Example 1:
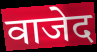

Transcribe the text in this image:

वाजेद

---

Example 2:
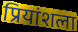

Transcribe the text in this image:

प्रियांशला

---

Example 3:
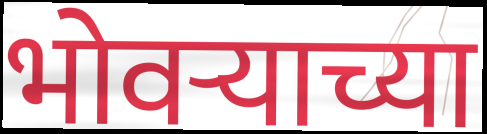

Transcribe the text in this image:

भोवऱ्याच्या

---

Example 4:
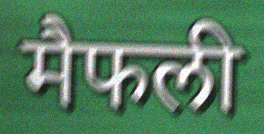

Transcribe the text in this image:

मैफली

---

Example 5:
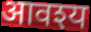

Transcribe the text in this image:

आवश्य